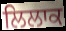
ਲਿਲਾਕ